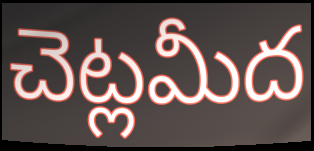
చెట్లమీద